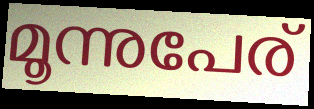
മൂന്നുപേര്